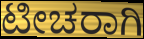
ಟೀಚರಾಗಿ